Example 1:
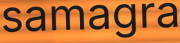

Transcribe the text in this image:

samagra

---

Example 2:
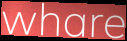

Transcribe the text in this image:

whare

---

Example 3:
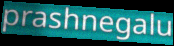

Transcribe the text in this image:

prashnegalu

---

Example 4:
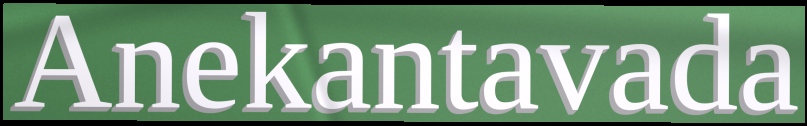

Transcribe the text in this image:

Anekantavada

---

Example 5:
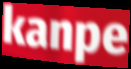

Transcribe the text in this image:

kanpe